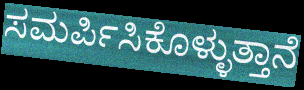
ಸಮರ್ಪಿಸಿಕೊಳ್ಳುತ್ತಾನೆ